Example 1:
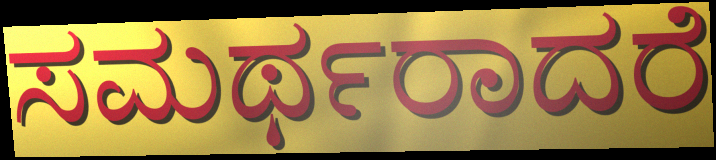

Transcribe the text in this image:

ಸಮರ್ಥರಾದರೆ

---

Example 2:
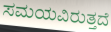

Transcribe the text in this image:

ಸಮಯವಿರುತ್ತದೆ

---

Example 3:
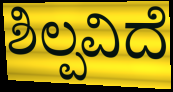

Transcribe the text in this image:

ಶಿಲ್ಪವಿದೆ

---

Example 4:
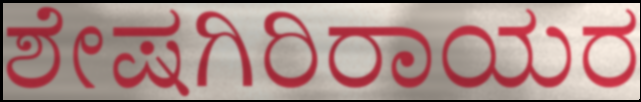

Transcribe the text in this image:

ಶೇಷಗಿರಿರಾಯರ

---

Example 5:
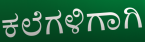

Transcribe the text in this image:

ಕಲೆಗಳಿಗಾಗಿ